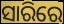
ସାରିରେ